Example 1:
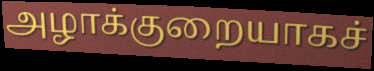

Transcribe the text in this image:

அழாக்குறையாகச்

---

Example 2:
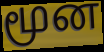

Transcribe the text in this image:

மூன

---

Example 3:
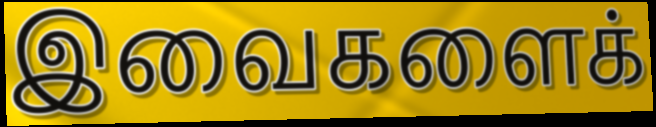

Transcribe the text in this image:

இவைகளைக்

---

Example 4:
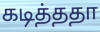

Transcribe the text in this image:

கடித்ததா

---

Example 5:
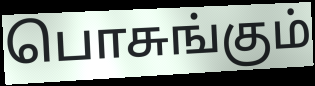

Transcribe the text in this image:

பொசுங்கும்